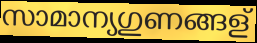
സാമാന്യഗുണങ്ങള്